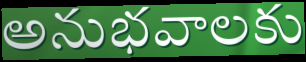
అనుభవాలకు